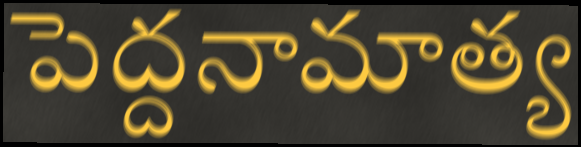
పెద్దనామాత్య